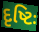
દૃષ્ટિઃ